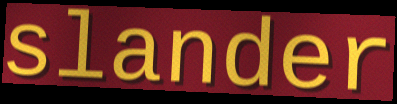
slander